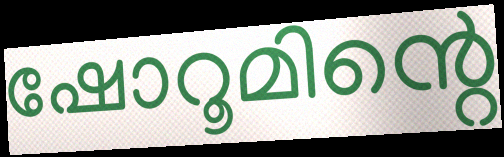
ഷോറൂമിന്റെ